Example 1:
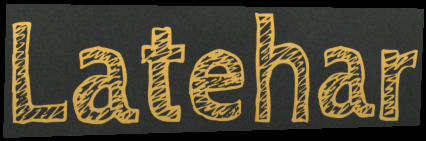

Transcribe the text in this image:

Latehar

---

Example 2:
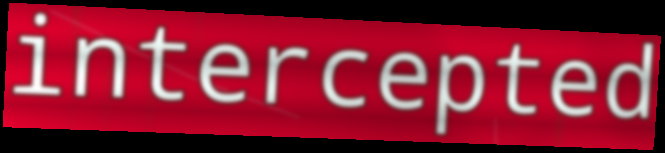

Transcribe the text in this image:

intercepted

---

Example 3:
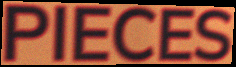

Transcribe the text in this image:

PIECES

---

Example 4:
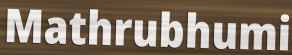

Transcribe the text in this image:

Mathrubhumi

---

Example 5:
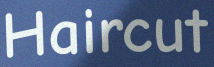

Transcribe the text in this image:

Haircut